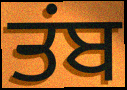
ਤਂਬ